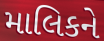
માલિકને